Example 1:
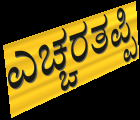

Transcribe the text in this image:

ಎಚ್ಚರತಪ್ಪಿ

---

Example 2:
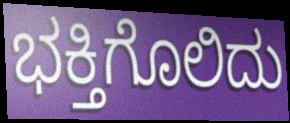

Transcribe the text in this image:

ಭಕ್ತಿಗೊಲಿದು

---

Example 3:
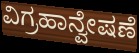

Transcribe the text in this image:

ವಿಗ್ರಹಾನ್ವೇಷಣೆ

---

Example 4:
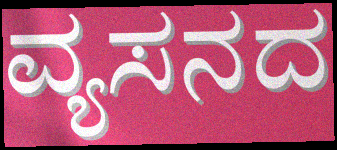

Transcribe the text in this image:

ವ್ಯಸನದ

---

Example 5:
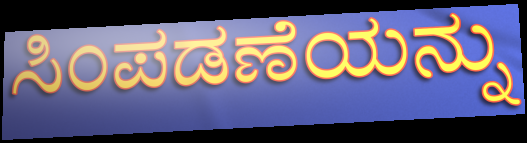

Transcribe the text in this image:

ಸಿಂಪಡಣೆಯನ್ನು